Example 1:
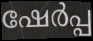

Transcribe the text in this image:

ഷേർപ്പ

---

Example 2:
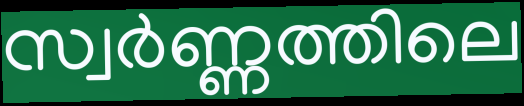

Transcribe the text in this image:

സ്വർണ്ണത്തിലെ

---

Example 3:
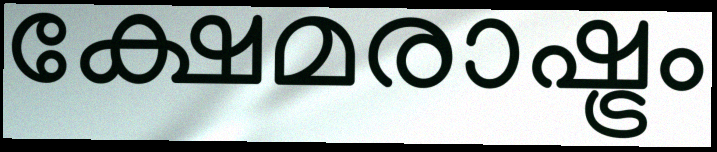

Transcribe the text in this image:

ക്ഷേമരാഷ്ട്രം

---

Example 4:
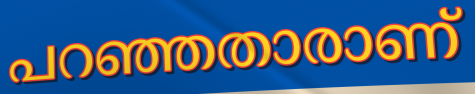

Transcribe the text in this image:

പറഞ്ഞതാരാണ്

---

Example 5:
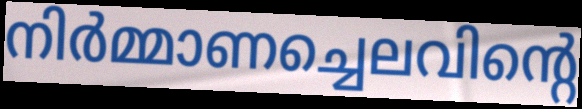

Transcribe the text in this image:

നിർമ്മാണച്ചെലവിന്റെ